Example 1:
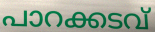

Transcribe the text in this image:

പാറക്കടവ്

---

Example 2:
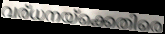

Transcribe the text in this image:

വര്ധനയ്ക്കെതിരെ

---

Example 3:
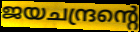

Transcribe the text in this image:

ജയചന്ദ്രന്റെ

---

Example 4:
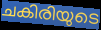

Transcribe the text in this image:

ചകിരിയുടെ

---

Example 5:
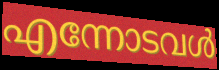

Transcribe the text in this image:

എന്നോടവൾ